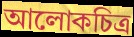
আলোকচিত্র